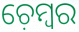
ଚ଼େମ୍ୱର